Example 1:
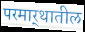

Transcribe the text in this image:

परमार्थातील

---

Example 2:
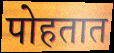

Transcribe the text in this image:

पोहतात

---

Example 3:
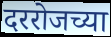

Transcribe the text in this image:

दररोजच्या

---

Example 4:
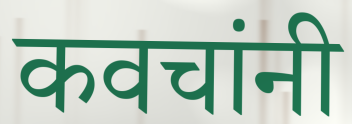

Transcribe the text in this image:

कवचांनी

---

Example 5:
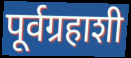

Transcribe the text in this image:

पूर्वग्रहाशी